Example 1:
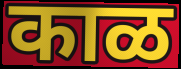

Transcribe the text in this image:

काळ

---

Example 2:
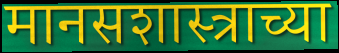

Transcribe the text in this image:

मानसशास्त्राच्या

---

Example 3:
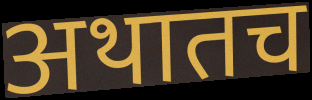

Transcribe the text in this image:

अथातच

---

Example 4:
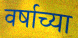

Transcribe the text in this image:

वर्षाच्या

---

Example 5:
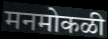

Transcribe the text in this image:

मनमोकळी